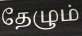
தேழும்